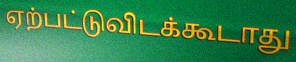
ஏற்பட்டுவிடக்கூடாது